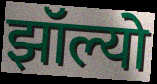
झॉल्यो